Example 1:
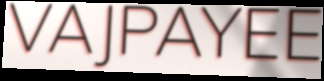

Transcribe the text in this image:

VAJPAYEE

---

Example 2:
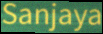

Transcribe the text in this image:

Sanjaya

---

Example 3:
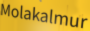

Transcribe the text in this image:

Molakalmur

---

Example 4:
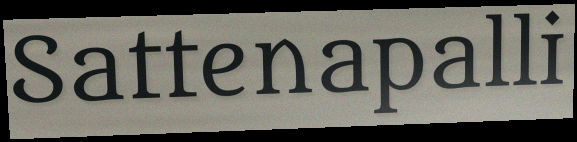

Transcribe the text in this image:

Sattenapalli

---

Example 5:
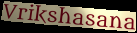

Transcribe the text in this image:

Vrikshasana